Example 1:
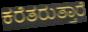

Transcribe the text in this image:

ಕರೆತರುತ್ತಾರೆ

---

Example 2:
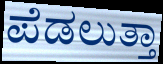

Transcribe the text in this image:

ಪೆಡಲುತ್ತಾ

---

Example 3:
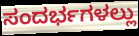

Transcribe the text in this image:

ಸಂದರ್ಭಗಳಲ್ಲು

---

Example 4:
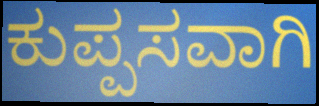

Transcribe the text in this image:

ಕುಪ್ಪಸವಾಗಿ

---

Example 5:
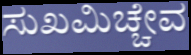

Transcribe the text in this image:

ಸುಖಮಿಚ್ಚೇವ